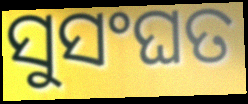
ସୁସଂଘତ